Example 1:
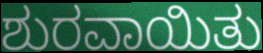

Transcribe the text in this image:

ಶುರವಾಯಿತು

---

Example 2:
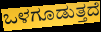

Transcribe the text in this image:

ಒಳಗೂಡುತ್ತದೆ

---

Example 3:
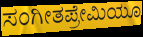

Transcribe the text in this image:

ಸಂಗೀತಪ್ರೇಮಿಯೂ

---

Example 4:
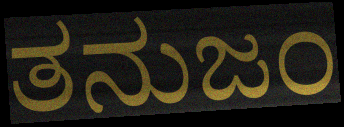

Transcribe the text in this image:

ತನುಜಂ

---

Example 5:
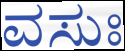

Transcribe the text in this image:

ವಸುಃ